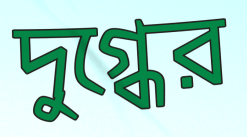
দুগ্ধের